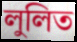
লুলিত